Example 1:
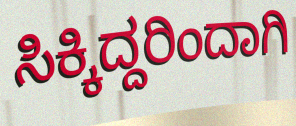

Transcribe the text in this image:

ಸಿಕ್ಕಿದ್ದರಿಂದಾಗಿ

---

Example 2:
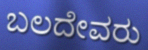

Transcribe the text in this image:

ಬಲದೇವರು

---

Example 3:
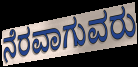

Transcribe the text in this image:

ನೆರವಾಗುವರು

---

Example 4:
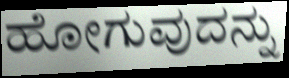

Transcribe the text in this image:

ಹೋಗುವುದನ್ನು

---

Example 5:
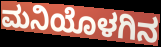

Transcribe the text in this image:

ಮನಿಯೊಳಗಿನ